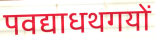
पवद्याधथगयों